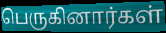
பெருகினார்கள்